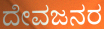
ದೇವಜನರ